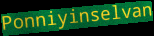
Ponniyinselvan